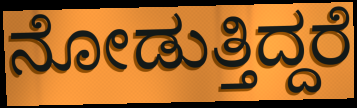
ನೋಡುತ್ತಿದ್ದರೆ